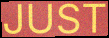
JUST